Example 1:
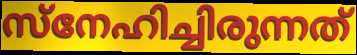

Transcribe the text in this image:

സ്നേഹിച്ചിരുന്നത്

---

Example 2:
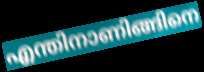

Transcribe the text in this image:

എന്തിനാണിങ്ങിനെ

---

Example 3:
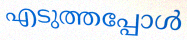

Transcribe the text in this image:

എടുത്തപ്പോൾ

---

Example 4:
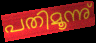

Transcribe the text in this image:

പതിമൂന്നു്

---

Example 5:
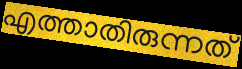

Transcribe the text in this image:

എത്താതിരുന്നത്